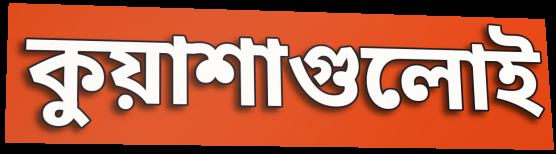
কুয়াশাগুলোই